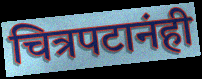
चित्रपटानंही